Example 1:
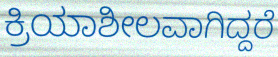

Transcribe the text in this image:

ಕ್ರಿಯಾಶೀಲವಾಗಿದ್ದರೆ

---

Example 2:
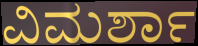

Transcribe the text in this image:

ವಿಮರ್ಶಾ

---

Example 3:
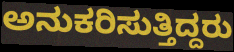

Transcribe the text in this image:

ಅನುಕರಿಸುತ್ತಿದ್ದರು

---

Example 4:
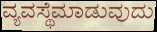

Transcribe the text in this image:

ವ್ಯವಸ್ಥೆಮಾಡುವುದು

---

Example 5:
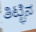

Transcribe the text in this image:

ತಿಟ್ಟಿನ